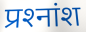
प्रश्‍नांश